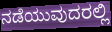
ನಡೆಯುವುದರಲ್ಲಿ